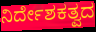
ನಿರ್ದೇಶಕತ್ವದ